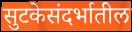
सुटकेसंदर्भातील